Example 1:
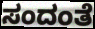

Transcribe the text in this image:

ಸಂದಂತೆ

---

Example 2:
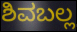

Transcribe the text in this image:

ಶಿವಬಲ್ಲ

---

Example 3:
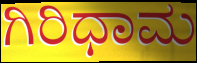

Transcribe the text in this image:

ಗಿರಿಧಾಮ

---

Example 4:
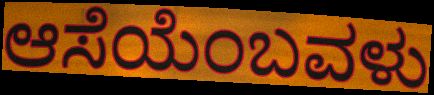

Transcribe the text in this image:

ಆಸೆಯೆಂಬವಳು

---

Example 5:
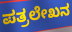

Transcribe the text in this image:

ಪತ್ರಲೇಖನ